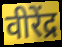
वीरेंद्र